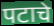
पटाचे